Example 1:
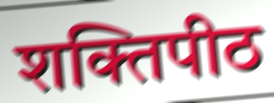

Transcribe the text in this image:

शक्तिपीठ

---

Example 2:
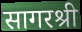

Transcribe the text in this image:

सागरश्री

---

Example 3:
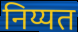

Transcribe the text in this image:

निय्यत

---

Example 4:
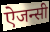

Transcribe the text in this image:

ऐजन्सी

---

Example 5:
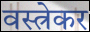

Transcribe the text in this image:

वस्त्रेकर